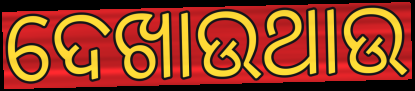
ଦେଖାଉଥାଉ